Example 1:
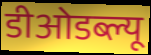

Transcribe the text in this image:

डीओडब्ल्यू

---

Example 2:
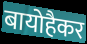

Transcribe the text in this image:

बायोहैकर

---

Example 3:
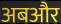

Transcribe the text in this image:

अबऔर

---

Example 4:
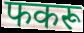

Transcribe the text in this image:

फकरू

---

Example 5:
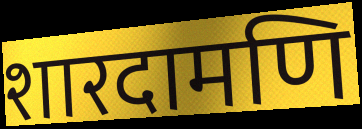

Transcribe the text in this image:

शारदामणि